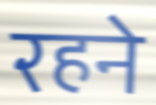
रहने